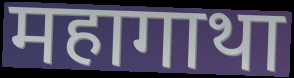
महागाथा